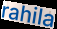
rahila